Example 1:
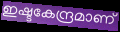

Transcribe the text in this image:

ഇഷ്ടകേന്ദ്രമാണ്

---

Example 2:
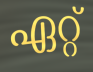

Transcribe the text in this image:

ഏറ്റ്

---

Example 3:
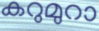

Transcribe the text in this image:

കറുമുറാ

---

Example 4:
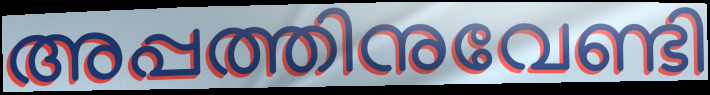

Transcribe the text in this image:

അപ്പത്തിനുവേണ്ടി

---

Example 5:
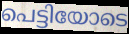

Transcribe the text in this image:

പെട്ടിയോടെ